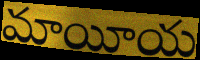
మాయీయ